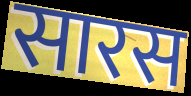
सारस